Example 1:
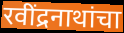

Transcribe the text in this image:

रवींद्रनाथांचा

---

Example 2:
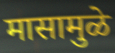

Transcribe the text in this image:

मासामुळे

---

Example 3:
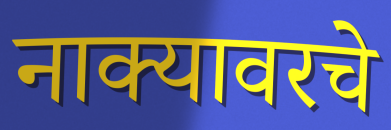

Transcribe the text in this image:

नाक्यावरचे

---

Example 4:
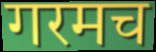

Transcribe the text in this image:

गरमच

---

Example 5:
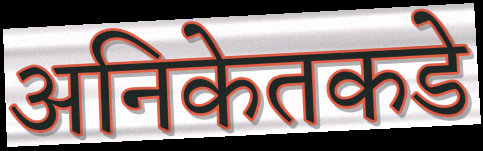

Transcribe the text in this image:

अनिकेतकडे